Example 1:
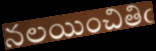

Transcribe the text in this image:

నలయించితిఁ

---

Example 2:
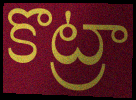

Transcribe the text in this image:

కొట్రా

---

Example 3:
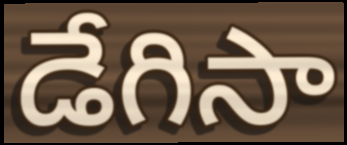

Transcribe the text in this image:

డేగిసా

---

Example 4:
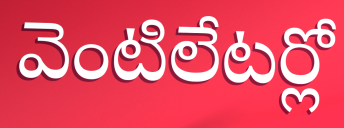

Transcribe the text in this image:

వెంటిలేటర్లో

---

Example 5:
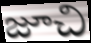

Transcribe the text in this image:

జూచి